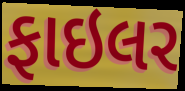
ફાઇલર